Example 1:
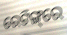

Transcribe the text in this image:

ରେଟିଙ୍ଗ୍‌ରେ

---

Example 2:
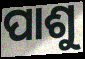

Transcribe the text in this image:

ପାଶୁ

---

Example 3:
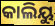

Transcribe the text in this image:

କାଲିୟୁ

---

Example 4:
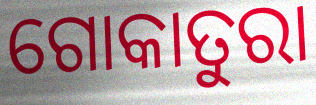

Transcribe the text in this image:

ଗୋକାତୁରା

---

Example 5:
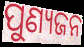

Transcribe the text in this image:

ପୁଣ୍ୟଜନ